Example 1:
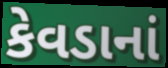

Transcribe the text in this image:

કેવડાનાં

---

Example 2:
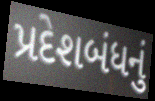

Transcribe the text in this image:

પ્રદેશબંધનું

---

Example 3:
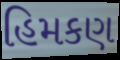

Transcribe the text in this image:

હિમકણ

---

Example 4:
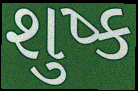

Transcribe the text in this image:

શુષ્ક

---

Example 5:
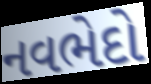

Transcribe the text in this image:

નવભેદો